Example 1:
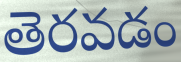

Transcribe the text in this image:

తెరవడం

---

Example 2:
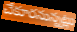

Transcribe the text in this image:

చేకూరనున్నట్లు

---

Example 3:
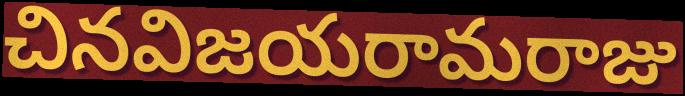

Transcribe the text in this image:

చినవిజయరామరాజు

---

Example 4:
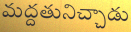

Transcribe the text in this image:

మద్దతునిచ్చాడు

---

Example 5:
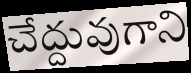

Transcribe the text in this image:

చేద్దువుగాని